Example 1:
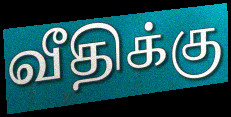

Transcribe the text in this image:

வீதிக்கு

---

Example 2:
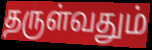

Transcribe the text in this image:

தருள்வதும்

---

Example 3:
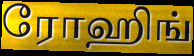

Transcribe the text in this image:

ரோஹிங்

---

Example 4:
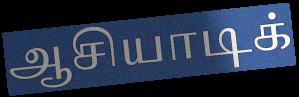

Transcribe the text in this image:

ஆசியாடிக்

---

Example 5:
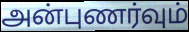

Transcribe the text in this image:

அன்புணர்வும்